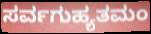
ಸರ್ವಗುಹ್ಯತಮಂ